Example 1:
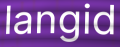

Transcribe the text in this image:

langid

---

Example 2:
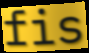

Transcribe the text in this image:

fis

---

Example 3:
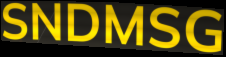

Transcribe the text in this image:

SNDMSG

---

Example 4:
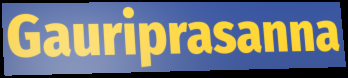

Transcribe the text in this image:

Gauriprasanna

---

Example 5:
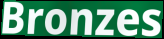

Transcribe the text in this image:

Bronzes